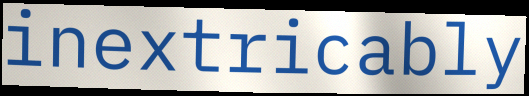
inextricably